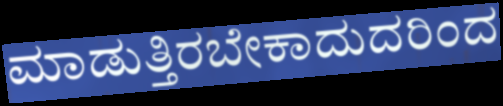
ಮಾಡುತ್ತಿರಬೇಕಾದುದರಿಂದ